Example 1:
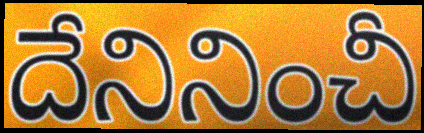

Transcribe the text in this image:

దేనినించీ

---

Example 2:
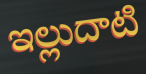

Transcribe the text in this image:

ఇల్లుదాటి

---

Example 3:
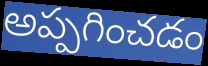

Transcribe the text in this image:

అప్పగించడం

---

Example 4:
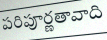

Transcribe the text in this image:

పరిపూర్ణతావాది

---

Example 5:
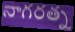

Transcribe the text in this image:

నాగరత్న